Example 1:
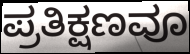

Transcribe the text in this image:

ಪ್ರತಿಕ್ಷಣವೂ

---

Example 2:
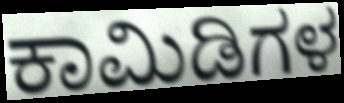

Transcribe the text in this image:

ಕಾಮಿಡಿಗಳ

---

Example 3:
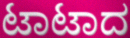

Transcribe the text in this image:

ಟಾಟಾದ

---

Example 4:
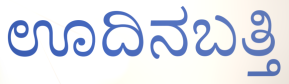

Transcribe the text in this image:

ಊದಿನಬತ್ತಿ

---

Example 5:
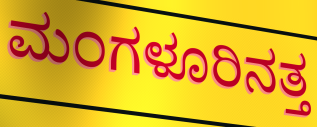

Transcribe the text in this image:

ಮಂಗಳೂರಿನತ್ತ